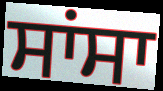
ਸਾਂਸਾ